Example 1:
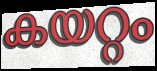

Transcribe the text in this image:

കയറ്റം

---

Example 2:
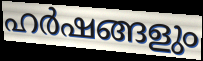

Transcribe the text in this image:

ഹർഷങ്ങളും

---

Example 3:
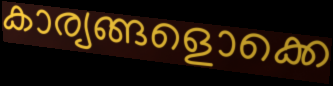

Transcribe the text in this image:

കാര്യങ്ങളൊക്കെ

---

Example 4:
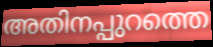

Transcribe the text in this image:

അതിനപ്പുറത്തെ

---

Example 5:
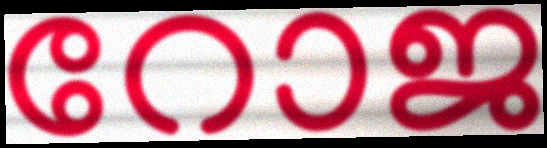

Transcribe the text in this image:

റോജ